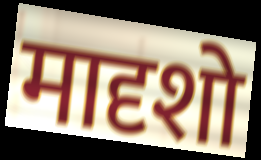
मादृशो